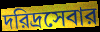
দরিদ্রসেবার